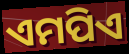
ଏମପିଏ